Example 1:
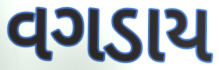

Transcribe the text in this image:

વગડાય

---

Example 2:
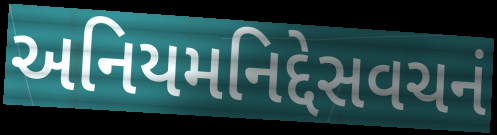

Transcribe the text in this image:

અનિયમનિદ્દેસવચનં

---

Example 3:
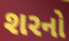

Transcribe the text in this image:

શરનો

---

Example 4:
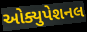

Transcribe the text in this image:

ઓક્યુપેશનલ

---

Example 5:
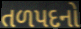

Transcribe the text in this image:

તળપદનો